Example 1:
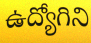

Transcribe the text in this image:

ఉద్యోగిని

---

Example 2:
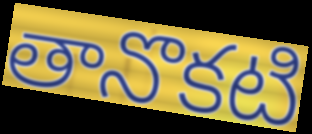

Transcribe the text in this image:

తానొకటి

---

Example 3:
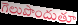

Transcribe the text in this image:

గెలుపొందుతూ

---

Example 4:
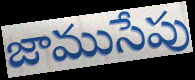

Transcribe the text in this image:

జాముసేపు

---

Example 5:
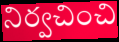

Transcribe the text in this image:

నిర్వచించి